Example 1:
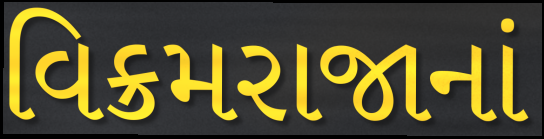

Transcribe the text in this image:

વિક્રમરાજાનાં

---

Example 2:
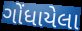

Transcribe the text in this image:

ગોંધાયેલા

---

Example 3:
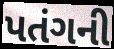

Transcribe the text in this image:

પતંગની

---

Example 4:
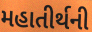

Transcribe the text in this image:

મહાતીર્થની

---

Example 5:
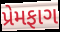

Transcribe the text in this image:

પ્રેમફાગ